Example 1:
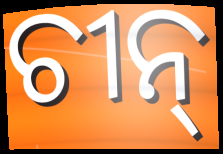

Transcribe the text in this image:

ଚୀନ୍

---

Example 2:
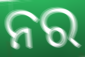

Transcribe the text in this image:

ନର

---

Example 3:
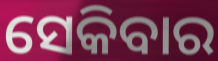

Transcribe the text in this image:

ସେକିବାର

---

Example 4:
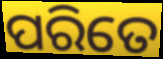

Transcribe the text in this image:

ପରିତେ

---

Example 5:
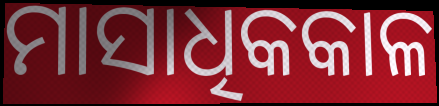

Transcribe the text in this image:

ମାସାଧିକକାଳ